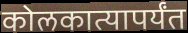
कोलकात्यापर्यंत